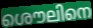
ശൌലിനെ